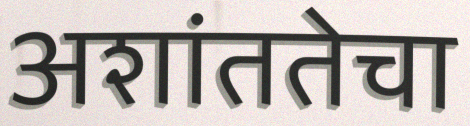
अशांततेचा